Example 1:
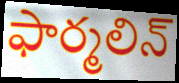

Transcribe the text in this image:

ఫార్మలిన్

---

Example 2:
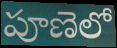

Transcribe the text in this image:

పూణెలో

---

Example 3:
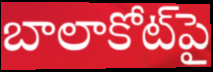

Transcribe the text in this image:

బాలాకోట్‌పై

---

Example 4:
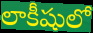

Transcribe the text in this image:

లాకీషులో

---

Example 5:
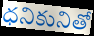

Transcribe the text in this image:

ధనికునితో